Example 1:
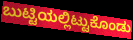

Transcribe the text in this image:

ಬುಟ್ಟಿಯಲ್ಲಿಟ್ಟುಕೊಂಡು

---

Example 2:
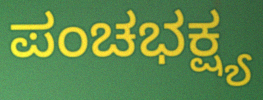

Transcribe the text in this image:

ಪಂಚಭಕ್ಷ್ಯ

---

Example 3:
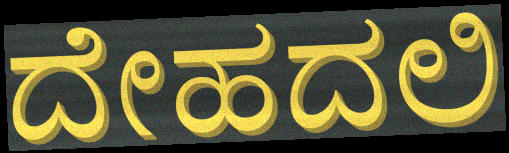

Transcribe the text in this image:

ದೇಹದಲಿ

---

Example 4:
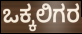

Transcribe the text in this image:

ಒಕ್ಕಲಿಗರ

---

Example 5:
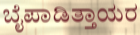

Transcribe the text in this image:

ಬೈಪಾಡಿತ್ತಾಯರ